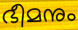
ഭീമനും